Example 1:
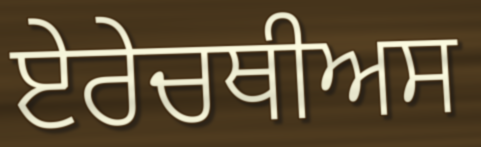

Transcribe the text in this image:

ਏਰੇਚਥੀਅਸ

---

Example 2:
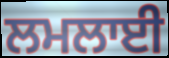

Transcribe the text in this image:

ਲਮਲਾਈ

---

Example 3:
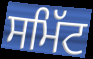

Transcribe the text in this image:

ਸਮਿੱਟ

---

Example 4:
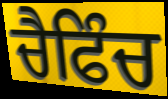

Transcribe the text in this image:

ਚੈਫਿੰਚ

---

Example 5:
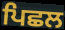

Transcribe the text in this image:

ਪਿਛਲ